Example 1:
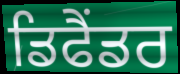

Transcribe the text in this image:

ਡਿਫੈਂਡਰ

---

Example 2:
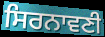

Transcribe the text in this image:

ਸਿਰਨਾਵਣੀ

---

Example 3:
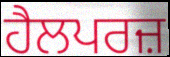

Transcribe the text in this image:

ਹੈਲਪਰਜ਼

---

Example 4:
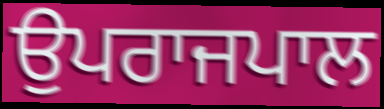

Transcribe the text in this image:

ਉਪਰਾਜਪਾਲ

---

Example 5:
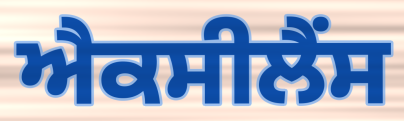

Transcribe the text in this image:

ਐਕਸੀਲੈਂਸ